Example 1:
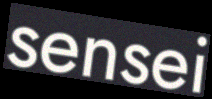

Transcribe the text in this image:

sensei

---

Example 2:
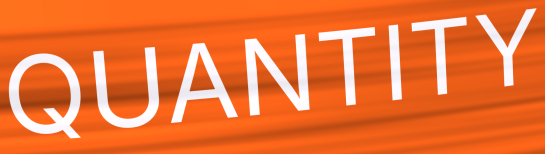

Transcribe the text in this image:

QUANTITY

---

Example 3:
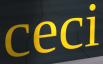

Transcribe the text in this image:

ceci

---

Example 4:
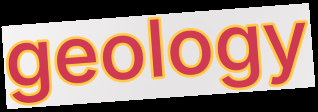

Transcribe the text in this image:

geology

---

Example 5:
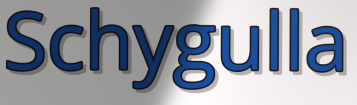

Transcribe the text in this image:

Schygulla